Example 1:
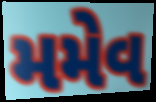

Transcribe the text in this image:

મમેવ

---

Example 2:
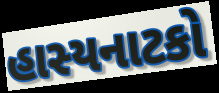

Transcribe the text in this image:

હાસ્યનાટકો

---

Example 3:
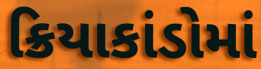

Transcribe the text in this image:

ક્રિયાકાંડોમાં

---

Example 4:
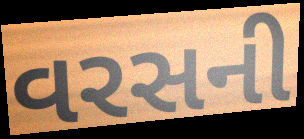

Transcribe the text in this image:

વરસની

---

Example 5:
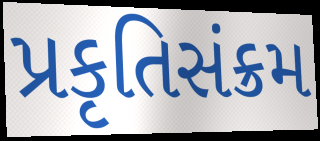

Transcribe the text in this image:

પ્રકૃતિસંક્રમ